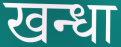
खन्धा